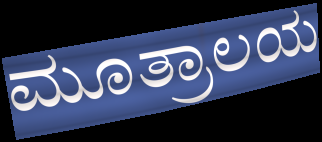
ಮೂತ್ರಾಲಯ